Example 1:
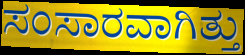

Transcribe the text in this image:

ಸಂಸಾರವಾಗಿತ್ತು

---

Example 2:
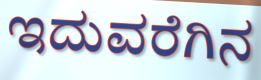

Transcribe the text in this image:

ಇದುವರೆಗಿನ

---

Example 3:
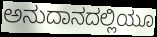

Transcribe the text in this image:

ಅನುದಾನದಲ್ಲಿಯೂ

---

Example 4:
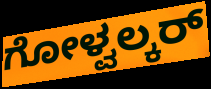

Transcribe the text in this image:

ಗೋಳ್ವಲ್ಕರ್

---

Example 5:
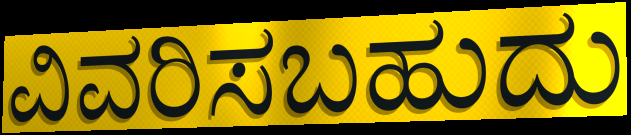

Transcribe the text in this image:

ವಿವರಿಸಬಹುದು